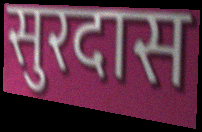
सुरदास